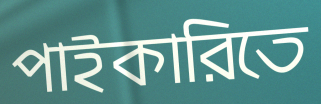
পাইকারিতে